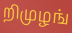
றிமுழங்